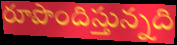
రూపొందిస్తున్నది